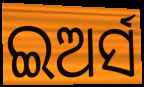
ଇଅର୍ସ